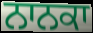
ਨਾਨਕਾ